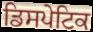
ਡਿਸਪੇਟਿਕ